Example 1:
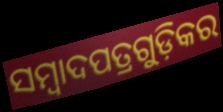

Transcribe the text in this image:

ସମ୍ୱାଦପତ୍ରଗୁଡ଼ିକର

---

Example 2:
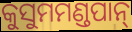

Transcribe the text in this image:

କୁସୁମମଣ୍ଡପାନ୍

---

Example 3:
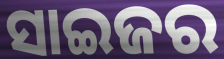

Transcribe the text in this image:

ସାଇଜର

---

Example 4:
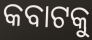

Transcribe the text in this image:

କବାଟକୁ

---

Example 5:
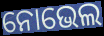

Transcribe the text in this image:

ନୋଭେଲ